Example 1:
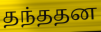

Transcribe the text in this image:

தந்ததன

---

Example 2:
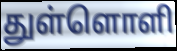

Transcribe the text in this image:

துள்ளொளி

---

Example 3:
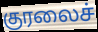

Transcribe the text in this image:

குரலைச்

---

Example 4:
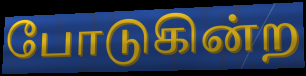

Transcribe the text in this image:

போடுகின்ற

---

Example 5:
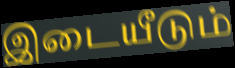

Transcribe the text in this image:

இடையீடும்